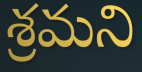
శ్రమని